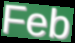
Feb